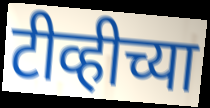
टीव्हीच्या